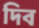
দিব